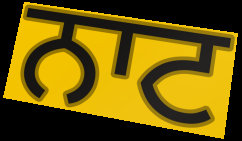
ਨਾਟ